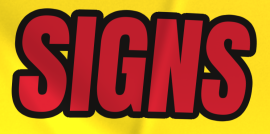
SIGNS